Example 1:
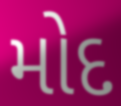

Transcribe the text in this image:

મોદ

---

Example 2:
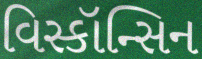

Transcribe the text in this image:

વિસ્કૉન્સિન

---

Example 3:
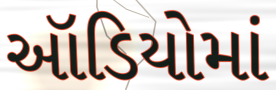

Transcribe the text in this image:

ઑડિયોમાં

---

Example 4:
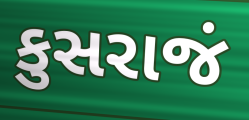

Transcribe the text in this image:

કુસરાજં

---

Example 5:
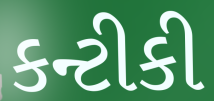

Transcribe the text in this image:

કન્ટીકી